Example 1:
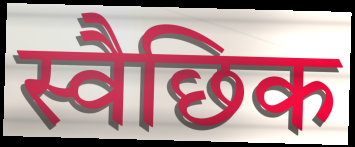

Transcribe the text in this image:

स्वैछिक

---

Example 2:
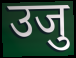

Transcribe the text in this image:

उजु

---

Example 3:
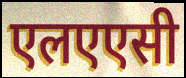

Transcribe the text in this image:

एलएएसी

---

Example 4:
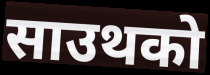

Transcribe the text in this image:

साउथको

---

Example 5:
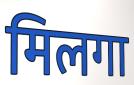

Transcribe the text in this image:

मिलगा